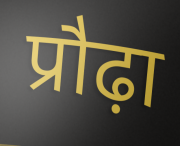
प्रौढ़ा